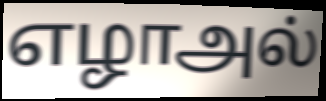
எழாஅல்